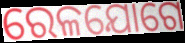
ରେଳଯୋଗେ